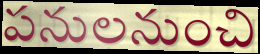
పనులనుంచి